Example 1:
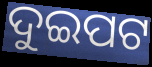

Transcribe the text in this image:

ଦୁଇପଟ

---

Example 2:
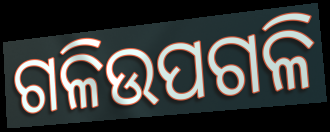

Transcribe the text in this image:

ଗଳିଉପଗଳି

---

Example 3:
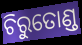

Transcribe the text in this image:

ଚିରୁତୋଣ୍ଡ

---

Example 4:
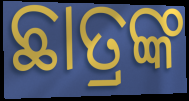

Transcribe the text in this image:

ଛାତ୍ରଙ୍କ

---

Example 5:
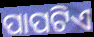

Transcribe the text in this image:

ପାପଟିଏ